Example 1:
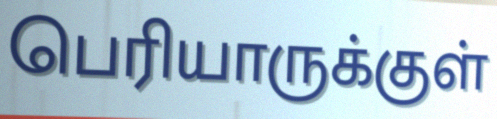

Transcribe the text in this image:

பெரியாருக்குள்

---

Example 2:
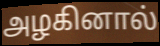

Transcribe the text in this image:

அழகினால்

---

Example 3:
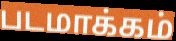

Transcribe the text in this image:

படமாக்கம்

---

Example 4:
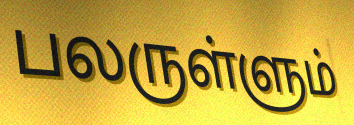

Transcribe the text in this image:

பலருள்ளும்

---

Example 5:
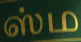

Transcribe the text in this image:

ஸ்ம